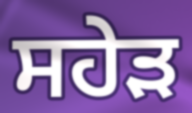
ਸਹੇੜ